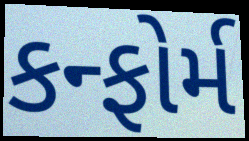
કન્ફોર્મ